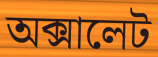
অক্সালেট